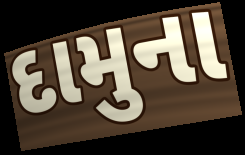
દામુના